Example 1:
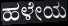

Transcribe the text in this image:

ಹಳೇಯ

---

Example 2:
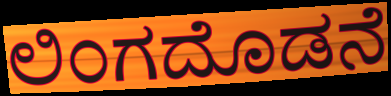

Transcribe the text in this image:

ಲಿಂಗದೊಡನೆ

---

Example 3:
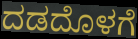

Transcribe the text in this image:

ದಡದೊಳಗೆ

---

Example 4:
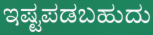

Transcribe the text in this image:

ಇಷ್ಟಪಡಬಹುದು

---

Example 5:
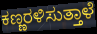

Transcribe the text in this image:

ಕಣ್ಣರಳಿಸುತ್ತಾಳೆ